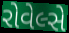
રોવેલ્સે